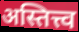
अस्तित्त्व